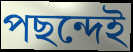
পছন্দেই